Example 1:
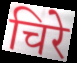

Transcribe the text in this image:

चिरे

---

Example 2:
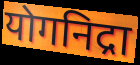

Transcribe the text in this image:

योगनिद्रा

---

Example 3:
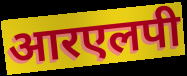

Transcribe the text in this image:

आरएलपी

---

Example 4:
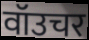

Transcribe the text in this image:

वॉउचर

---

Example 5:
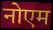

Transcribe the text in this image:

नोएम